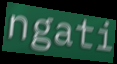
ngati